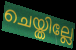
ചെയ്തില്ലേ